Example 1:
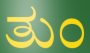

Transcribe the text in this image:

ತುಂ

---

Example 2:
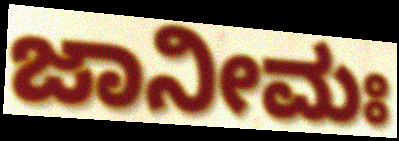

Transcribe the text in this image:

ಜಾನೀಮಃ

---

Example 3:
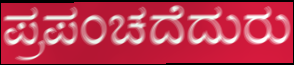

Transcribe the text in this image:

ಪ್ರಪಂಚದೆದುರು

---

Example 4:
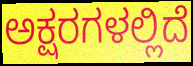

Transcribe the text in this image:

ಅಕ್ಷರಗಳಲ್ಲಿದೆ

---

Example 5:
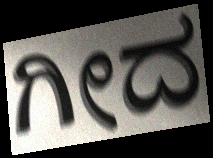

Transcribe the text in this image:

ಗೀದ